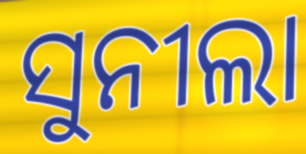
ସୁନୀଲା